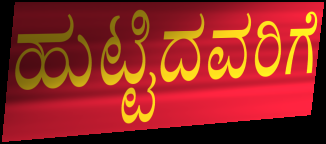
ಹುಟ್ಟಿದವರಿಗೆ